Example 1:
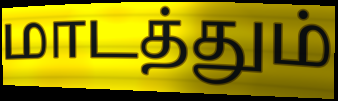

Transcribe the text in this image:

மாடத்தும்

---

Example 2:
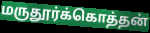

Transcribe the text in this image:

மருதூர்க்கொத்தன்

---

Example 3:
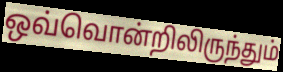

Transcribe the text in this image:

ஒவ்வொன்றிலிருந்தும்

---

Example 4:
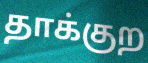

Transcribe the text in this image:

தாக்குற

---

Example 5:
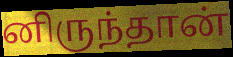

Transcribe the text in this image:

னிருந்தான்